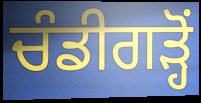
ਚੰਡੀਗੜ੍ਹੋਂ